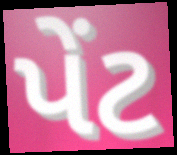
પેંટ